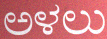
ಅಳಲು